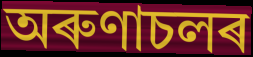
অৰুণাচলৰ